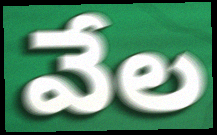
వేల